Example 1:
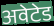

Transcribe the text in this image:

अवेटेड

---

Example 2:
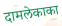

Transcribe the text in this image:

दामलेकाका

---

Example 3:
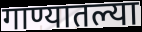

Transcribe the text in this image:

गाण्यातल्या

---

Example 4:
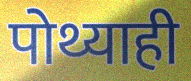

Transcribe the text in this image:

पोथ्याही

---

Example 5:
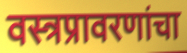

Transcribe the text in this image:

वस्त्रप्रावरणांचा